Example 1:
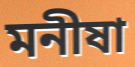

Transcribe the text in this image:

মনীষা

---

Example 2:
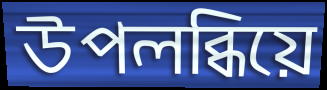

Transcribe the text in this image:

উপলব্ধিয়ে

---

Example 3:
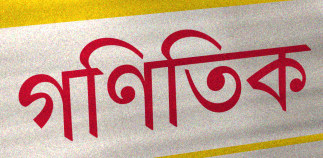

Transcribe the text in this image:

গণিতিক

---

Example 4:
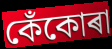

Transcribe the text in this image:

কেঁকোৰা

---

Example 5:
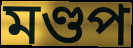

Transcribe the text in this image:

মণ্ডপ